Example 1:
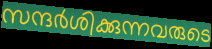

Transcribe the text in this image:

സന്ദർശിക്കുന്നവരുടെ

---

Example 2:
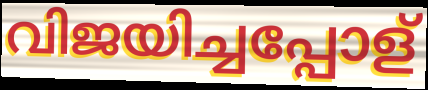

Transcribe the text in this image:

വിജയിച്ചപ്പോള്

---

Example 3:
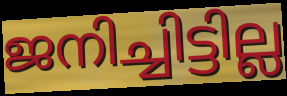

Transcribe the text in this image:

ജനിച്ചിട്ടില്ല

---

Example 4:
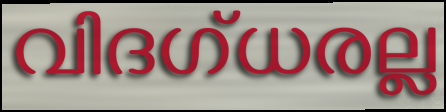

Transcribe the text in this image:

വിദഗ്ധരല്ല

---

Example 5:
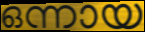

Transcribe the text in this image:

ഒന്നായ